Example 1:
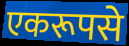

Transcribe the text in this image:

एकरूपसे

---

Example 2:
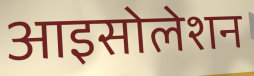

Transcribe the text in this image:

आइसोलेशन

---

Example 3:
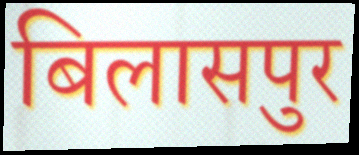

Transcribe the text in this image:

बिलासपुर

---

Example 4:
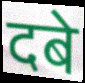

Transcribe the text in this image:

दबे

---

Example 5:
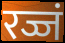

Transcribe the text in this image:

रज्जं